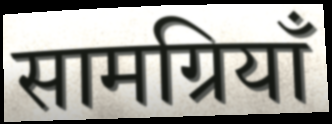
सामग्रियाँ